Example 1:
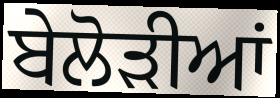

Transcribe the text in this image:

ਬੇਲੋੜੀਆਂ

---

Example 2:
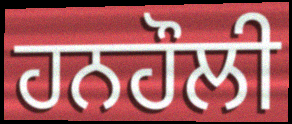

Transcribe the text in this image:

ਹਨਹੌਲੀ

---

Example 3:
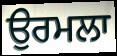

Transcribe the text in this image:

ਉਰਮਲਾ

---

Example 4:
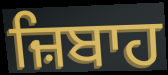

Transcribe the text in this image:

ਜ਼ਿਬਾਹ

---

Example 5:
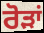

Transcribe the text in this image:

ਰੋੜਾਂ